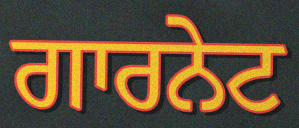
ਗਾਰਨੇਟ